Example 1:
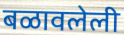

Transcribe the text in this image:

बळावलेली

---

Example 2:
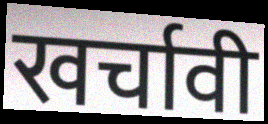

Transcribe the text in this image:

खर्चावी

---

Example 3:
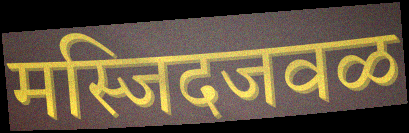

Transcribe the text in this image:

मस्जिदजवळ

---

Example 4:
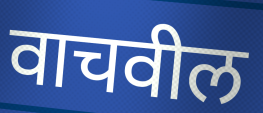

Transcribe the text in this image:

वाचवील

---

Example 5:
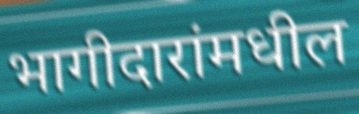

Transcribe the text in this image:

भागीदारांमधील